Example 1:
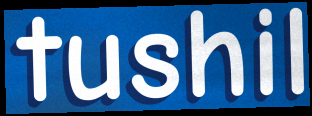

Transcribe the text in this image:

tushil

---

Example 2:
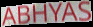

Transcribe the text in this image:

ABHYAS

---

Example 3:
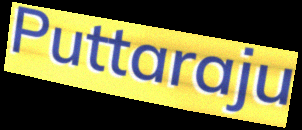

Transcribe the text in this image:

Puttaraju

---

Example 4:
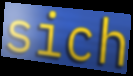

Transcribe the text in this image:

sich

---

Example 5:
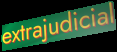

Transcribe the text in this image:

extrajudicial